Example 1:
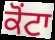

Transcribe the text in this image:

ਕੋਂਟਾ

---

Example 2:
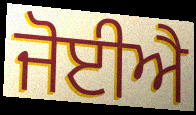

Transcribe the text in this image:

ਜੋਈਐ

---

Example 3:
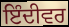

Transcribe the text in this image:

ਇੰਦੀਵਰ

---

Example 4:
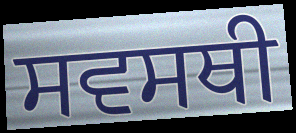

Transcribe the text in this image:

ਸਵਸਥੀ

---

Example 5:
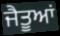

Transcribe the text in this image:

ਜੈਤੂਆਂ